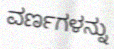
ವರ್ಣಗಳನ್ನು